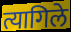
त्यागिले